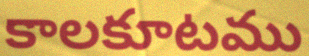
కాలకూటము